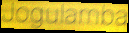
Jogulamba